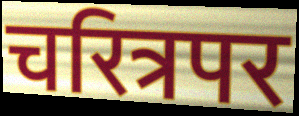
चरित्रपर